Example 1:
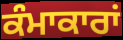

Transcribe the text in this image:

ਕੰਮਾਕਾਰਾਂ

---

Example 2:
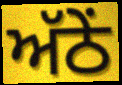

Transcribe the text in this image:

ਅੱਠੇਂ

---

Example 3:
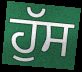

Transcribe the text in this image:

ਹੁੱਸ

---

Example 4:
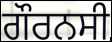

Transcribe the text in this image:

ਗੌਰਨਸੀ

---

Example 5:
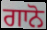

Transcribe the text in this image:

ਗਾਨੋ